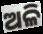
ଅଳି